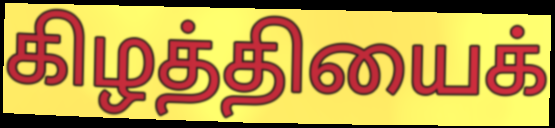
கிழத்தியைக்